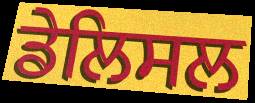
ਡੇਲਿਸਲ